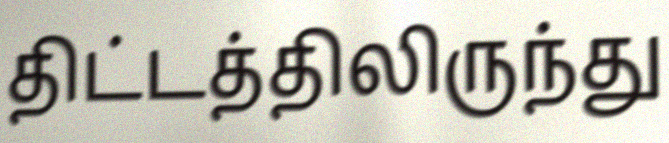
திட்டத்திலிருந்து